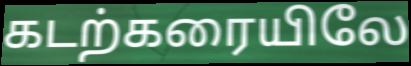
கடற்கரையிலே